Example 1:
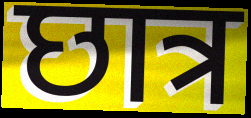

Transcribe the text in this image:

छात्र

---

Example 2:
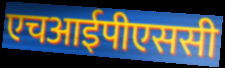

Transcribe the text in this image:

एचआईपीएससी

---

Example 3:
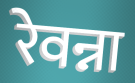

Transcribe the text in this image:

रेवन्ना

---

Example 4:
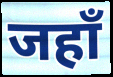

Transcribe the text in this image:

जहाँ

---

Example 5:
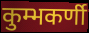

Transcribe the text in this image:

कुम्भकर्णी